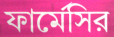
ফার্মেসির